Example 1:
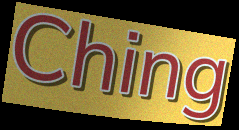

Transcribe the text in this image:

Ching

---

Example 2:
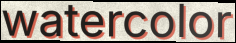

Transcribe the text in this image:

watercolor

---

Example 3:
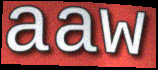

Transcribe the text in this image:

aaw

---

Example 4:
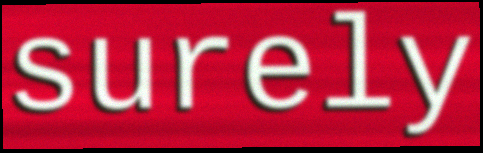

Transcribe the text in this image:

surely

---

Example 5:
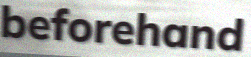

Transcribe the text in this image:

beforehand